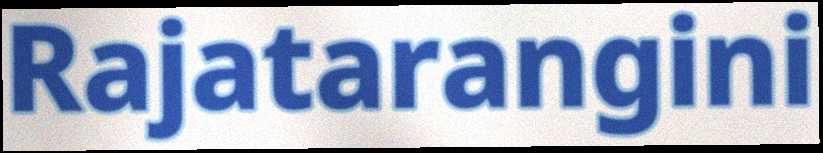
Rajatarangini